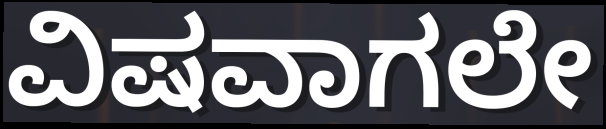
ವಿಷವಾಗಲೇ